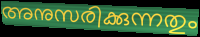
അനുസരിക്കുന്നതും